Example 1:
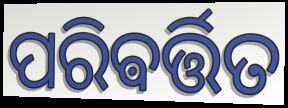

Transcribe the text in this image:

ପରିଵର୍ତ୍ତିତ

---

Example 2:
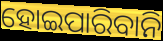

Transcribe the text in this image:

ହୋଇପାରିବାନି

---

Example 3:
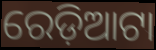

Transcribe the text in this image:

ରେଡ଼ିଆଟା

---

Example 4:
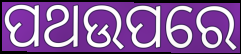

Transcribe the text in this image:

ପଥଉପରେ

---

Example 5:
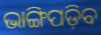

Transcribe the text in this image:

ଭାଙ୍ଗିପଡ଼ିବ